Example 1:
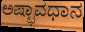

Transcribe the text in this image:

ಅಷ್ಟಾವಧಾನ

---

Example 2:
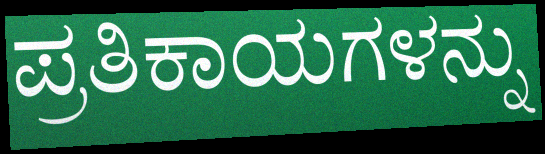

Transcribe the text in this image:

ಪ್ರತಿಕಾಯಗಳನ್ನು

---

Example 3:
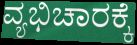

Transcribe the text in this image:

ವ್ಯಭಿಚಾರಕ್ಕೆ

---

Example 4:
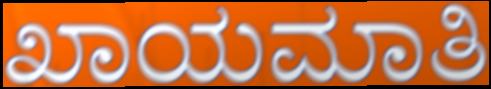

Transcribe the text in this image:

ಖಾಯಮಾತಿ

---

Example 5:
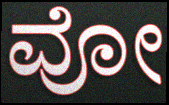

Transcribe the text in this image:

ವೋ